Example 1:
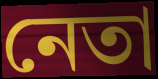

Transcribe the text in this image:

নেতা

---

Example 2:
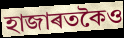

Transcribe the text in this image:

হাজাৰতকৈও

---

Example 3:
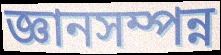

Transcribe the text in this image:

জ্ঞানসম্পন্ন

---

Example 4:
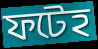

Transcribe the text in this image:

ফটেহ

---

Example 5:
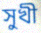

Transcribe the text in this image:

সুখী